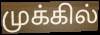
முக்கில்